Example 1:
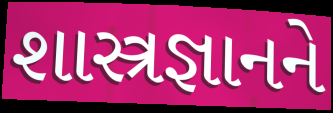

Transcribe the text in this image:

શાસ્ત્રજ્ઞાનને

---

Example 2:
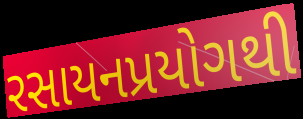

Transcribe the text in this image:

રસાયનપ્રયોગથી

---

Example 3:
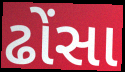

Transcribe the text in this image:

ઢોંસા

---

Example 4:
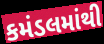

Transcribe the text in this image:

કમંડલમાંથી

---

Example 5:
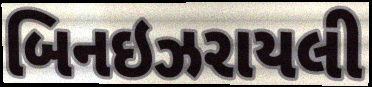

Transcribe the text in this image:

બિનઇઝરાયલી